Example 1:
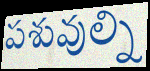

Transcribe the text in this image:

పశువుల్ని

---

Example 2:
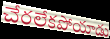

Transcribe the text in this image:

చేరలేకపోయాడు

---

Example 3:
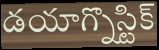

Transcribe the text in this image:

డయాగ్నొస్టిక్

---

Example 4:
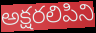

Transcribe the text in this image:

అక్షరలిపిని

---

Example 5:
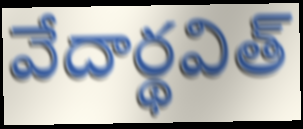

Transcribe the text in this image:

వేదార్థవిత్